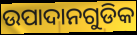
ଉପାଦାନଗୁଡିକ